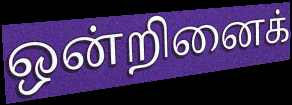
ஒன்றினைக்